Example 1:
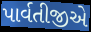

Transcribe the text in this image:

પાર્વતીજીએ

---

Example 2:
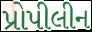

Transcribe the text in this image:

પ્રોપીલીન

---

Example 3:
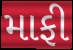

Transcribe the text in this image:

માફી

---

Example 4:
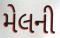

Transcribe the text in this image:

મેલની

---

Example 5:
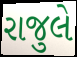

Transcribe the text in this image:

રાજુલે